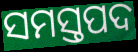
ସମସ୍ତପଦ